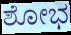
ಶೋಭ